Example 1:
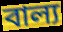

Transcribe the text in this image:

বাল্য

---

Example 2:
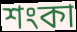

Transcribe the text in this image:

শংকা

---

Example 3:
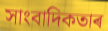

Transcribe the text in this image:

সাংবাদিকতাৰ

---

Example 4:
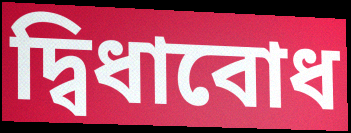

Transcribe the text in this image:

দ্বিধাবোধ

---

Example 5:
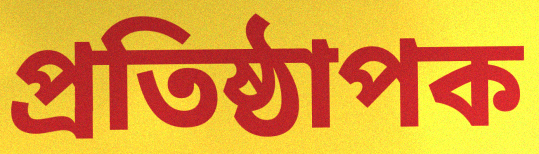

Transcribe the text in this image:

প্ৰতিষ্ঠাপক